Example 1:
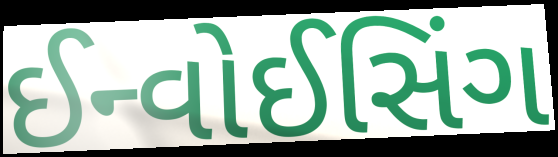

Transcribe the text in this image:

ઈન્વોઈસિંગ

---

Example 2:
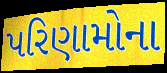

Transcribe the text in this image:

પરિણામોના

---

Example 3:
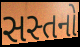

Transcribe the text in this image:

સસ્તનો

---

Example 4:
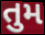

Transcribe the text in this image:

તુમ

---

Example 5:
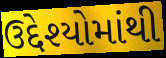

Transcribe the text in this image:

ઉદ્દેશ્યોમાંથી